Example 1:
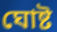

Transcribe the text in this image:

ঘোষ্ট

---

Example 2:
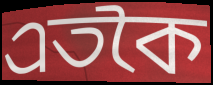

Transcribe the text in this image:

এতকৈ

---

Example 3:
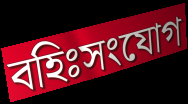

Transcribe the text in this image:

বহিঃসংযোগ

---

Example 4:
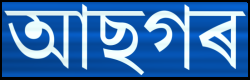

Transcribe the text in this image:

আছগৰ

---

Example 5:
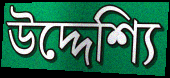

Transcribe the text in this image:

উদ্দেশ্যি